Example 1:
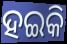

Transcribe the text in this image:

ହଇକି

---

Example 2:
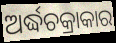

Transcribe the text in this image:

ଅର୍ଦ୍ଧଚକ୍ରାକାର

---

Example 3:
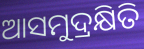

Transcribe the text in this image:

ଆସମୁଦ୍ରକ୍ଷିତି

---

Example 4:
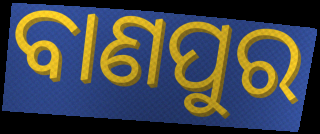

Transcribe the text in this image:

ବାଣପୁର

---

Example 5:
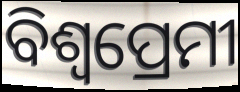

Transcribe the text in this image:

ବିଶ୍ବପ୍ରେମୀ